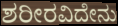
ಶರೀರವಿದೇನು